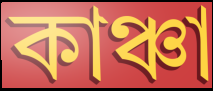
কাঞ্চা